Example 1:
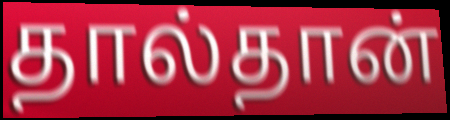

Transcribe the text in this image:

தால்தான்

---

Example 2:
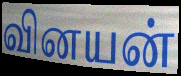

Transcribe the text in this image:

வினயன்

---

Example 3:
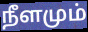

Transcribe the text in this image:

நீளமும்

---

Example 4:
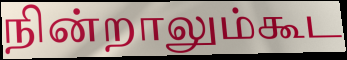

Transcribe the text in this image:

நின்றாலும்கூட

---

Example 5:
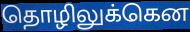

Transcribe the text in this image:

தொழிலுக்கென